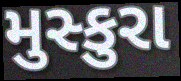
મુસ્કુરા